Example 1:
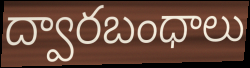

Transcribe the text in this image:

ద్వారబంధాలు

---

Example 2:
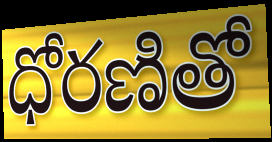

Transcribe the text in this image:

ధోరణితో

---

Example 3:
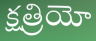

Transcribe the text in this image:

క్షత్రియో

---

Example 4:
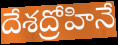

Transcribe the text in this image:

దేశద్రోహినే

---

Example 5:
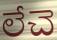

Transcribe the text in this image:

లేచె